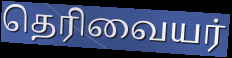
தெரிவையர்